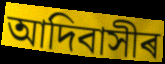
আদিবাসীৰ